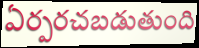
ఏర్పరచబడుతుంది